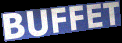
BUFFET